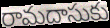
రామదాసుకు